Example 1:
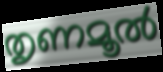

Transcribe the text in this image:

തൃണമൂൽ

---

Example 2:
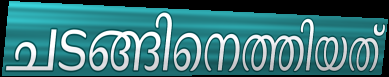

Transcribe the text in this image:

ചടങ്ങിനെത്തിയത്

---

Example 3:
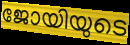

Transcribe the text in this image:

ജോയിയുടെ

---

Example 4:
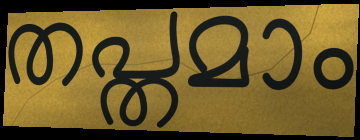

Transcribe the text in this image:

തപ്തമാം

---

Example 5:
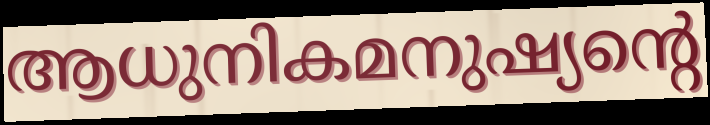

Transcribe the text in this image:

ആധുനികമനുഷ്യന്റെ